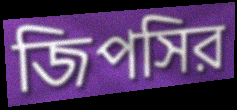
জিপসির